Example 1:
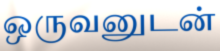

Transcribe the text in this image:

ஒருவனுடன்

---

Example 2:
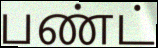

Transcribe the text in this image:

பண்ட்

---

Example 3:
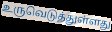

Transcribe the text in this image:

உருவெடுத்துள்ளது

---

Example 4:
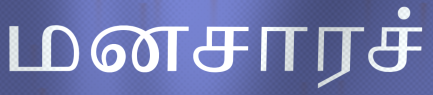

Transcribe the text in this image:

மனசாரச்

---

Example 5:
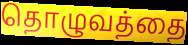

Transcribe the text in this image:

தொழுவத்தை